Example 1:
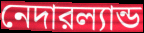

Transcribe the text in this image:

নেদারল্যান্ড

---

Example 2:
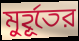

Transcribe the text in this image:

মুর্হূতের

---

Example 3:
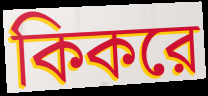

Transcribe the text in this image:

কিকরে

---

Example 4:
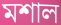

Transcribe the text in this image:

মশাল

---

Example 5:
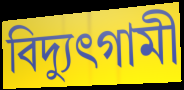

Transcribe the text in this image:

বিদ্যুৎগামী